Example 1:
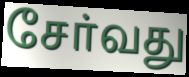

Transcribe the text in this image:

சேர்வது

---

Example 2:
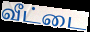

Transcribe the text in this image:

வீட்டை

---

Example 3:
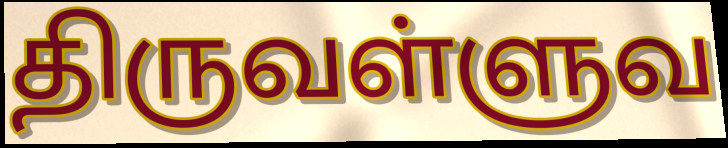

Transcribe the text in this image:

திருவள்ளுவ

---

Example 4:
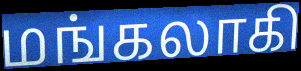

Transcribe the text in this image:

மங்கலாகி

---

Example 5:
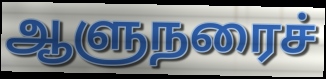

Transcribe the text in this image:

ஆளுநரைச்